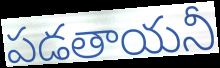
పడతాయనీ